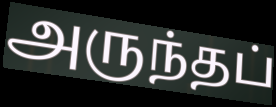
அருந்தப்